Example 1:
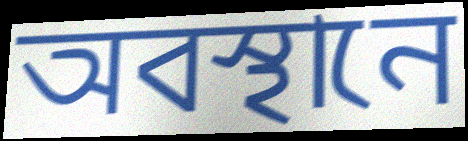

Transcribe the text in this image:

অবস্থানে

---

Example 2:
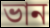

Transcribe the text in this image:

ভান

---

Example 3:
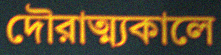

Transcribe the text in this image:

দৌরাত্ম্যকালে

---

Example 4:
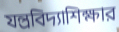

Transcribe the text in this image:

যন্ত্রবিদ্যাশিক্ষার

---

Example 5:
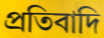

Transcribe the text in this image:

প্রতিবাদি